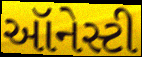
ઑનેસ્ટી